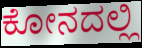
ಕೋನದಲ್ಲಿ